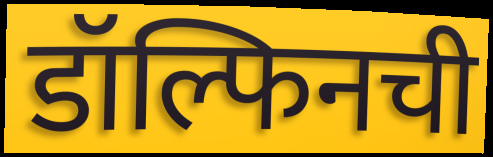
डॉल्फिनची